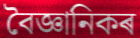
বৈজ্ঞানিকৰ